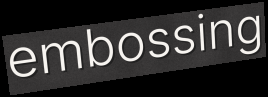
embossing